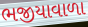
ભજીયાવાળા